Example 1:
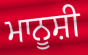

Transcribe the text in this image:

ਮਾਨੂਸ਼ੀ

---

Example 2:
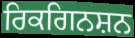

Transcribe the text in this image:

ਰਿਕਗਿਨਸ਼ਨ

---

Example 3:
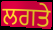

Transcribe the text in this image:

ਲਗਤੇ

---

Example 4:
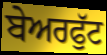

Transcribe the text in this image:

ਬੇਅਰਫੁੱਟ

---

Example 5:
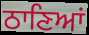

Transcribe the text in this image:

ਠਾਣਿਆਂ